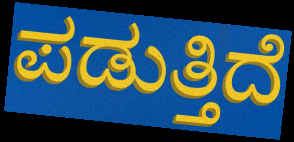
ಪಡುತ್ತಿದೆ